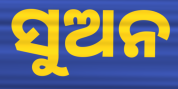
ସୁଅନ